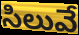
సిలువే